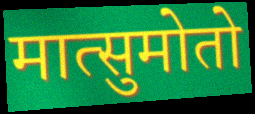
मात्सुमोतो